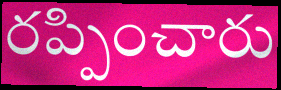
రప్పించారు